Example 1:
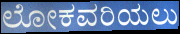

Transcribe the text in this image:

ಲೋಕವರಿಯಲು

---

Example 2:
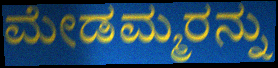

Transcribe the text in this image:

ಮೇಡಮ್ಮರನ್ನು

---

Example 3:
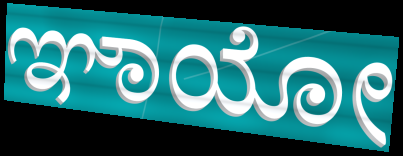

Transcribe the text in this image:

ಞಾಯೋ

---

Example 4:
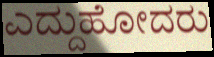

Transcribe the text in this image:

ಎದ್ದುಹೋದರು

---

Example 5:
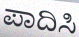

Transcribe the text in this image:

ಪಾದಿಸಿ